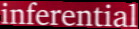
inferential